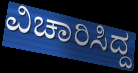
ವಿಚಾರಿಸಿದ್ದ